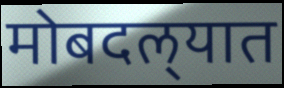
मोबदल्यात